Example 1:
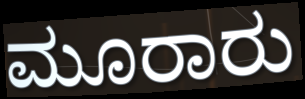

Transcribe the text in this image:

ಮೂರಾರು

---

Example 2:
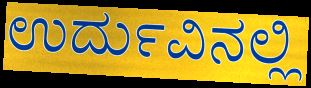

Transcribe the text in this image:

ಉರ್ದುವಿನಲ್ಲಿ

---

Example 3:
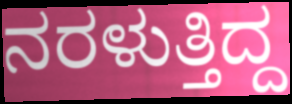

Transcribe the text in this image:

ನರಳುತ್ತಿದ್ದ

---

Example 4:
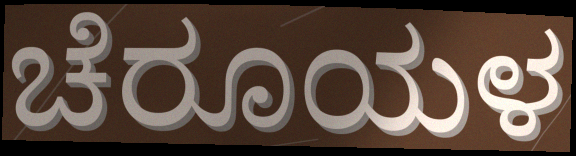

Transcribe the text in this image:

ಚೆರೂಯಳ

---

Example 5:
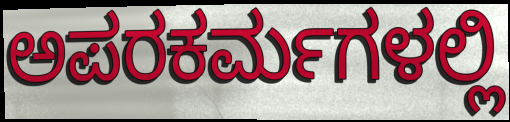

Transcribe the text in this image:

ಅಪರಕರ್ಮಗಳಲ್ಲಿ